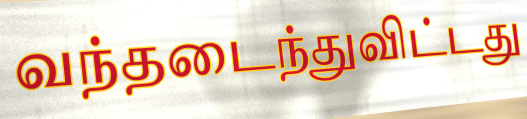
வந்தடைந்துவிட்டது